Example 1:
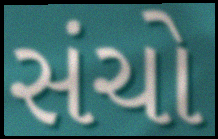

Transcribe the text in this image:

સંચો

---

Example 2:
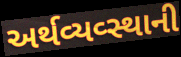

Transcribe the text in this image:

અર્થવ્યવ્સ્થાની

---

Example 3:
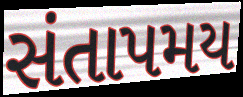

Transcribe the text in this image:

સંતાપમય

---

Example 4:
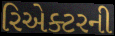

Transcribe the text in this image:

રિએક્ટરની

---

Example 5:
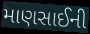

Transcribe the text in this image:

માણસાઈની